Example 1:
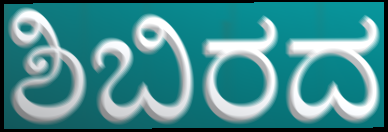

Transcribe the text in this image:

ಶಿಬಿರದ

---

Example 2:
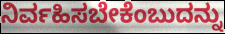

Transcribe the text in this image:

ನಿರ್ವಹಿಸಬೇಕೆಂಬುದನ್ನು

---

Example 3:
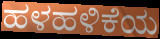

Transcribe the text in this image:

ಹಳಹಳಿಕೆಯ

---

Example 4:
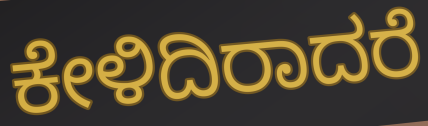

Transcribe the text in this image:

ಕೇಳಿದಿರಾದರೆ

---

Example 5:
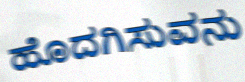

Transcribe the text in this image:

ಹೊದಗಿಸುವನು